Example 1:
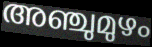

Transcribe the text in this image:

അഞ്ചുമുഴം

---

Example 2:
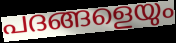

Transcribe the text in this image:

പദങ്ങളെയും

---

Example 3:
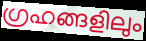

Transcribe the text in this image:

ഗ്രഹങ്ങളിലും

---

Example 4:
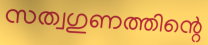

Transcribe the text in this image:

സത്വഗുണത്തിന്റെ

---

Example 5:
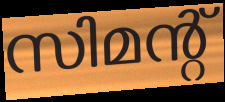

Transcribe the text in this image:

സിമന്റ്